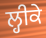
ਲ੍ਹੀਕੇ